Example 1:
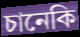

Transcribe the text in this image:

চানেকি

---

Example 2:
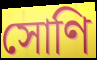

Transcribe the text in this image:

সোণি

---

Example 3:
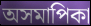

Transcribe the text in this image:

অসমাপিকা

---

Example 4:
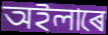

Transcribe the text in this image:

অইলাৰে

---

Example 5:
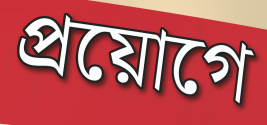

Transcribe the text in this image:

প্ৰয়োগে